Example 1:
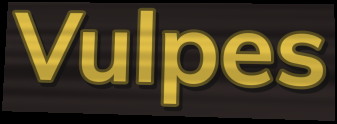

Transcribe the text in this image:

Vulpes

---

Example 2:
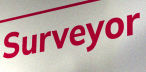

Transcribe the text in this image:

Surveyor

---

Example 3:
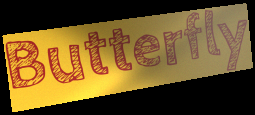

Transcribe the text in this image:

Butterfly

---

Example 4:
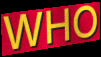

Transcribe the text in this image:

WHO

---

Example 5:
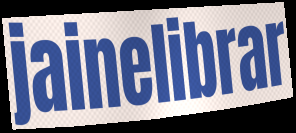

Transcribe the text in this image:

jainelibrar